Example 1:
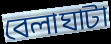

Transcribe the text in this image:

বেলাঘাটা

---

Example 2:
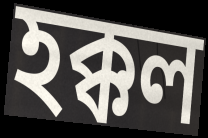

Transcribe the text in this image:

হক্কল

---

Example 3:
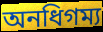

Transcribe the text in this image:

অনধিগম্য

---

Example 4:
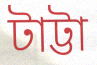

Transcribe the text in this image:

টাট্টা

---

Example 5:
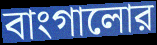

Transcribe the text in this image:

বাংগালোর